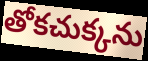
తోకచుక్కను